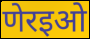
णेरइओ